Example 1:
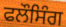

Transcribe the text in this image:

ਫਲੌਸਿੰਗ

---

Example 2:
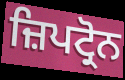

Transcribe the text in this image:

ਜ਼ਿਪਟ੍ਰੋਨ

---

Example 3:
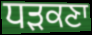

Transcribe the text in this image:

ਧੜਕਣਾ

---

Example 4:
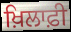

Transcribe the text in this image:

ਖ਼ਿਲਾਫ਼ੀ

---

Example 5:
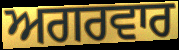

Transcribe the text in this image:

ਅਗਰਵਾਰ